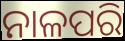
ନାଳପରି